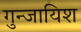
गुन्जायिश